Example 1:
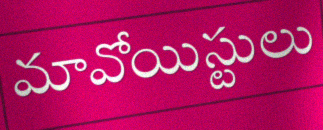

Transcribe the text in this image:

మావోయిస్టులు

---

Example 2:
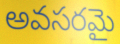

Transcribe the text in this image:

అవసరమై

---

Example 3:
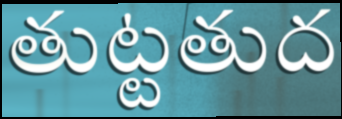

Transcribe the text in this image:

తుట్టతుద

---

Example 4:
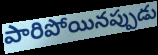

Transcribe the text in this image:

పారిపోయినప్పుడు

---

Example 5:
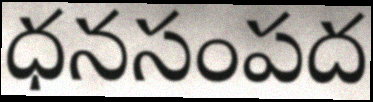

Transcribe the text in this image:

ధనసంపద